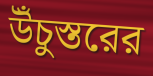
উঁচুস্তরের